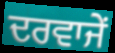
ਦਰਵਾਜੇਂ